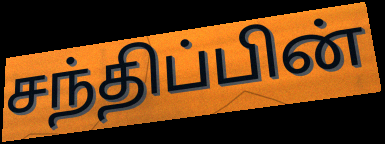
சந்திப்பின்